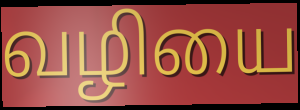
வழியை